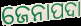
ଜେନାପଦା